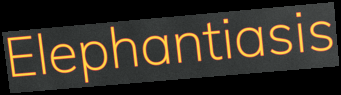
Elephantiasis